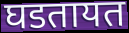
घडतायत